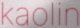
kaolin